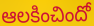
ఆలకించిందో